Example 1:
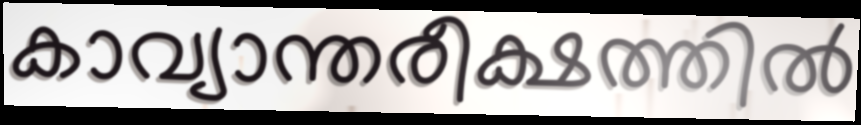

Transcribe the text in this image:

കാവ്യാന്തരീക്ഷത്തിൽ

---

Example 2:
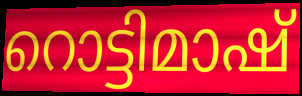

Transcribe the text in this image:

റൊട്ടിമാഷ്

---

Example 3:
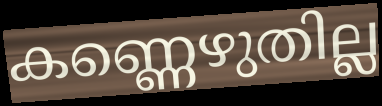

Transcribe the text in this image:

കണ്ണെഴുതില്ല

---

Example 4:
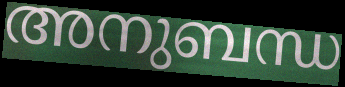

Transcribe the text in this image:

അനുബന്ധ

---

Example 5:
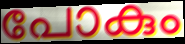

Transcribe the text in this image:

പോകും